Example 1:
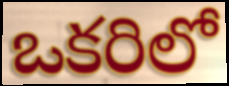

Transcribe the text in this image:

ఒకరిలో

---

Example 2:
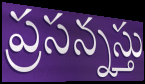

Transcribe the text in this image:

ప్రసన్నస్తు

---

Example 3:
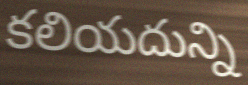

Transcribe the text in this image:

కలియదున్ని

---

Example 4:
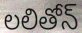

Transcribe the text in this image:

లలితోన్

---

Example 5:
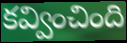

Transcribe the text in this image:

కవ్వించింది